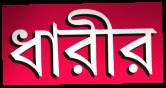
ধারীর